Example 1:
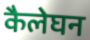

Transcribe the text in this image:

कैलेघन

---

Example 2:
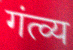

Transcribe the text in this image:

गंत्व्य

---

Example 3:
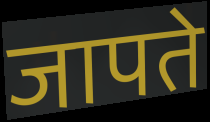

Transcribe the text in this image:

जापते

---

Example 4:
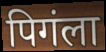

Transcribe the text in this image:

पिगंला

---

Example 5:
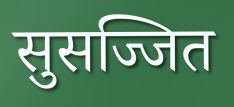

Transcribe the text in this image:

सुसज्जित